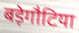
बड़ेगौटिया